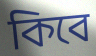
কিবে